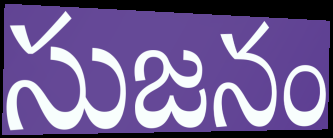
సుజనం